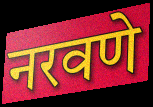
नरवणे